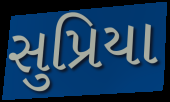
સુપ્રિયા